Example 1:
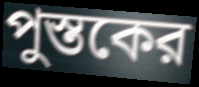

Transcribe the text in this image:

পুস্তকের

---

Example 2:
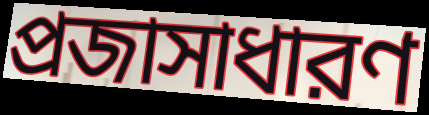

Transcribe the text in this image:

প্রজাসাধারণ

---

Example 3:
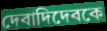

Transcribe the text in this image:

দেবাদিদেবকে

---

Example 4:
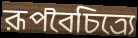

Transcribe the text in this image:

রূপবৈচিত্র্যে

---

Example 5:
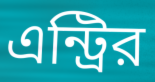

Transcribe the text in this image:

এন্ট্রির